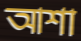
আশা